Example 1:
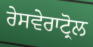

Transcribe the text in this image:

ਰੇਸਵੇਰਾਟ੍ਰੋਲ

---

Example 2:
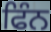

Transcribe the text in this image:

ਫਿੰਨ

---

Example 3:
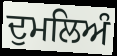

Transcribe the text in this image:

ਦੁਮਲਿਅੰ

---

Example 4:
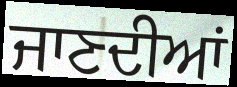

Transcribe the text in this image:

ਜਾਣਦੀਆਂ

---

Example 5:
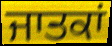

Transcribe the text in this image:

ਜਾਤਕਾਂ